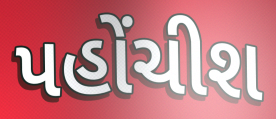
પહોંચીશ